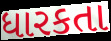
ધારકતા